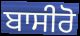
ਬਾਸੀਰੋ